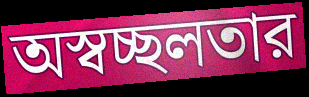
অস্বচ্ছলতার